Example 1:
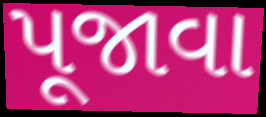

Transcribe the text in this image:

પૂજાવા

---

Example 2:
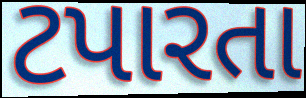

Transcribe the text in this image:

ટપારતા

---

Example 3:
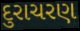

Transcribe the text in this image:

દુરાચરણ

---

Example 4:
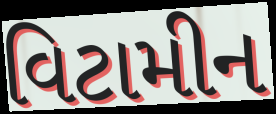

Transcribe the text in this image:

વિટામીન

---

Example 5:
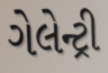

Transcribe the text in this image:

ગેલેન્ટ્રી